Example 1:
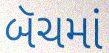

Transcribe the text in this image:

બૅચમાં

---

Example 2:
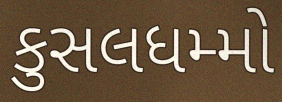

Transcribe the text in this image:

કુસલધમ્મો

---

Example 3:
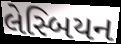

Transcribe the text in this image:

લેસ્બિયન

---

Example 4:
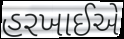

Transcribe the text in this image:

હરખાઈએ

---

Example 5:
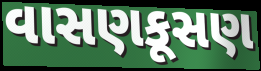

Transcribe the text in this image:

વાસણકૂસણ